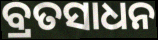
ବ୍ରତସାଧନ